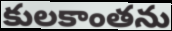
కులకాంతను